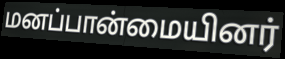
மனப்பான்மையினர்